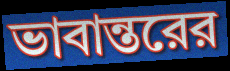
ভাবান্তরের